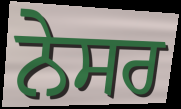
ਨੇਸਰ